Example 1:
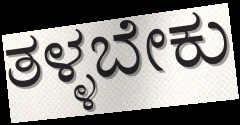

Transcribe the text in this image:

ತಳ್ಳಬೇಕು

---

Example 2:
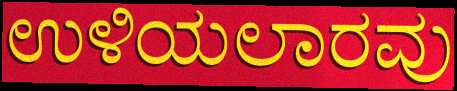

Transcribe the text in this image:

ಉಳಿಯಲಾರವು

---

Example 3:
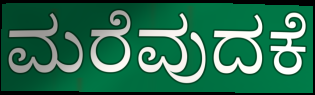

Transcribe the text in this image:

ಮರೆವುದಕೆ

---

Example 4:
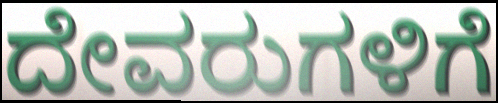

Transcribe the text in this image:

ದೇವರುಗಳಿಗೆ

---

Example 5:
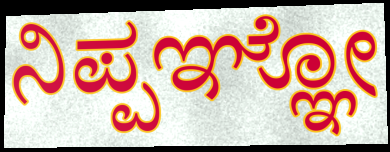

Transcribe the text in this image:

ನಿಪ್ಪಞ್ಞೋ